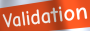
Validation